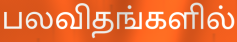
பலவிதங்களில்